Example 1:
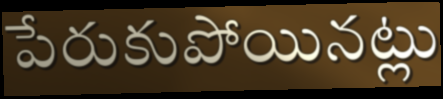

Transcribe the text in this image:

పేరుకుపోయినట్లు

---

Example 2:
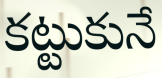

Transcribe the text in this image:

కట్టుకునే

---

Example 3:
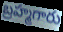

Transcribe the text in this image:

బ్రహ్మగారు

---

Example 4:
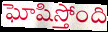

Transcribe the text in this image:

ఘోషిస్తోంది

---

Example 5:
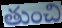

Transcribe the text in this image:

తుంచి